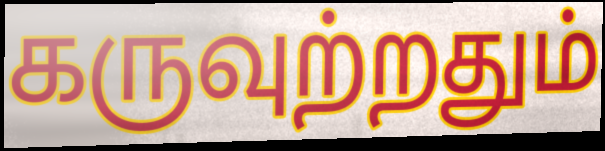
கருவுற்றதும்